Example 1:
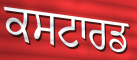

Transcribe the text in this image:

ਕਸਟਾਰਡ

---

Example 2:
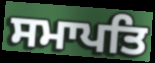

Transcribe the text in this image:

ਸਮਾਪਤਿ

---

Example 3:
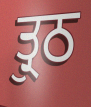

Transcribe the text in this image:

ਤ੍ਰੁਠ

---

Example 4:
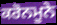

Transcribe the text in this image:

ਕਰੋਨਮੂਨੇ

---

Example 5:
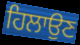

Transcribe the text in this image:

ਹਿਲਾਉਣ